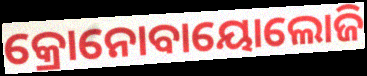
କ୍ରୋନୋବାୟୋଲୋଜି